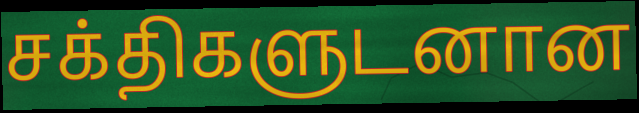
சக்திகளுடனான